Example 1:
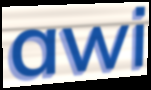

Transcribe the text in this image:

awi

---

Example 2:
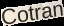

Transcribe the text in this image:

Cotran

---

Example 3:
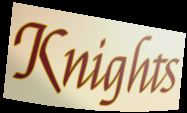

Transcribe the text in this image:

Knights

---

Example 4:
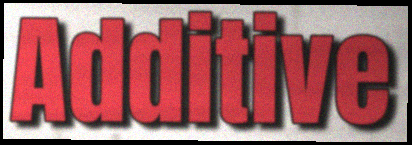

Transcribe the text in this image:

Additive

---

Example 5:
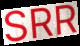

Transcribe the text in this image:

SRR